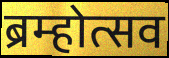
ब्रम्होत्सव